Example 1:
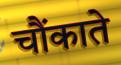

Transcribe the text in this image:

चौंकाते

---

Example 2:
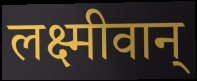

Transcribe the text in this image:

लक्ष्मीवान्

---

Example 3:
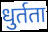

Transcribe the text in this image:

धुर्तता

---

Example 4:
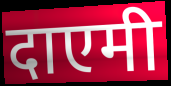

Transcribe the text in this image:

दाएमी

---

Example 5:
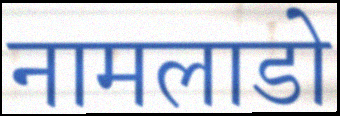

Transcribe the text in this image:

नामलाडो